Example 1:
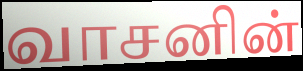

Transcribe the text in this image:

வாசனின்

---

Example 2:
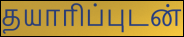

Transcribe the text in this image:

தயாரிப்புடன்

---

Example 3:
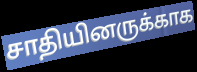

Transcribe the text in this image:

சாதியினருக்காக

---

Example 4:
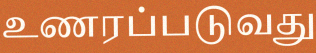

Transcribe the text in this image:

உணரப்படுவது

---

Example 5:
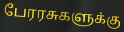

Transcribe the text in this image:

பேரரசுகளுக்கு